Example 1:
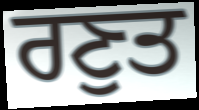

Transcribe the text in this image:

ਰਣੁਤ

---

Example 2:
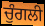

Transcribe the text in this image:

ਚੁੰਗਲੀ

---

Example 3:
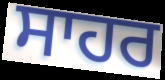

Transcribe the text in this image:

ਸਾਹਰ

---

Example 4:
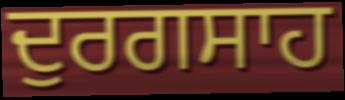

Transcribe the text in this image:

ਦੁਰਗਸਾਹ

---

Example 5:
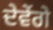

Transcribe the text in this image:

ਦੇਵੇਂਗੇ